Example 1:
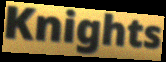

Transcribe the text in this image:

Knights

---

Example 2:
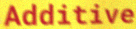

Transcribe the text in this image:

Additive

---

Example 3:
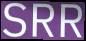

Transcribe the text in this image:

SRR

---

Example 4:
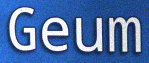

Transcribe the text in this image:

Geum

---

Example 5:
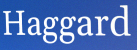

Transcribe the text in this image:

Haggard